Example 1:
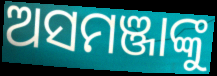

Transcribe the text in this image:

ଅସମଞ୍ଜାଙ୍କୁ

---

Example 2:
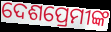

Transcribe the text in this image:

ଦେଶପ୍ରେମୀଙ୍କ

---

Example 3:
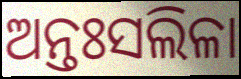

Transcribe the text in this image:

ଅନ୍ତଃସଲିଳା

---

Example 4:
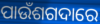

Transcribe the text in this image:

ପାଉଁଶଗଦାରେ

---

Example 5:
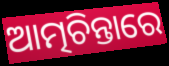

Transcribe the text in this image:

ଆତ୍ମଚିନ୍ତାରେ